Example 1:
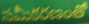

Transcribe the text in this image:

సమీకరణంతో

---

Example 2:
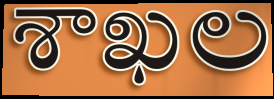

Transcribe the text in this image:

శాఖల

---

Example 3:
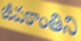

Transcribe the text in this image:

జీవకాంతిని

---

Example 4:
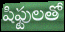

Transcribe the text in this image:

షిఫ్టులతో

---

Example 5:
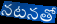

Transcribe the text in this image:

నటనతో